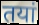
तयां